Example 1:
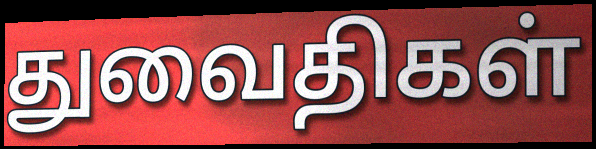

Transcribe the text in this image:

துவைதிகள்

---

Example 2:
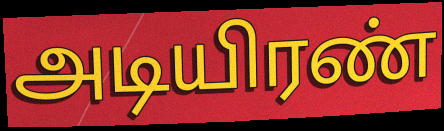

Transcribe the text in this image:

அடியிரண்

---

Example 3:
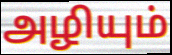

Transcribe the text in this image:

அழியும்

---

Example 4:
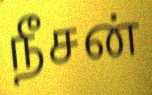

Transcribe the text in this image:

நீசன்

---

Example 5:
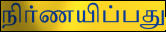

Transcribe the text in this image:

நிர்ணயிப்பது